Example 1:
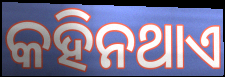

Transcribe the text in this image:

କହିନଥାଏ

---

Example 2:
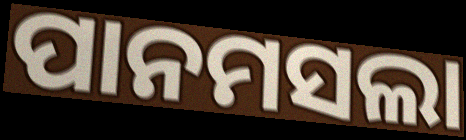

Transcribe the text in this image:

ପାନମସଲା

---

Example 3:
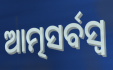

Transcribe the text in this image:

ଆତ୍ମସର୍ବସ୍ଵ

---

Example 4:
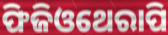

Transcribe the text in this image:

ଫିଜିଓଥେରାପି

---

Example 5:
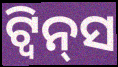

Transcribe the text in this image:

ଟ୍ବିନ୍‌ସ